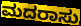
ಮದರಾಸು